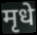
मृधे